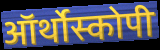
ऑर्थोस्कोपी